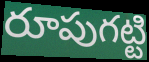
రూపుగట్టి